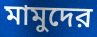
মামুদের